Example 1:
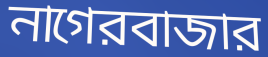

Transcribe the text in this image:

নাগেরবাজার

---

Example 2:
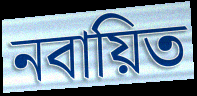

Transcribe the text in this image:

নবায়িত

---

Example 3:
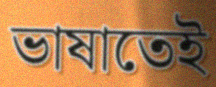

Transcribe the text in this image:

ভাষাতেই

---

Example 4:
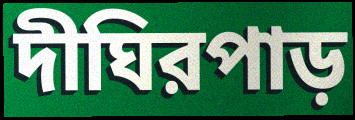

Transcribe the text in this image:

দীঘিরপাড়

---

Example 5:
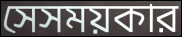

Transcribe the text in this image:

সেসময়কার